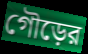
গৌড়ের